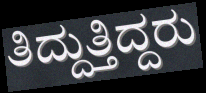
ತಿದ್ದುತ್ತಿದ್ದರು